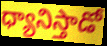
ధ్యానిస్తాడో